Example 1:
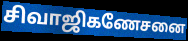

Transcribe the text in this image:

சிவாஜிகணேசனை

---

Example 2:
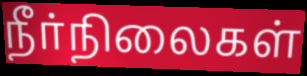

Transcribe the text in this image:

நீர்நிலைகள்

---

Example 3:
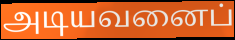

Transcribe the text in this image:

அடியவனைப்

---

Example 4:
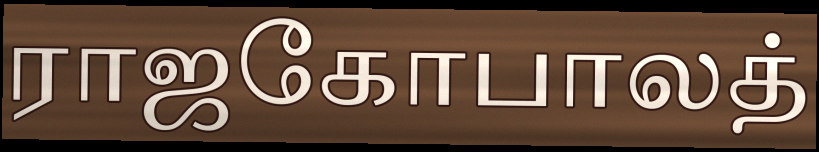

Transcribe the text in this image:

ராஜகோபாலத்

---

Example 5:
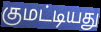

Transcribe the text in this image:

குமட்டியது